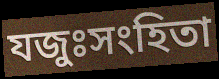
যজুঃসংহিতা